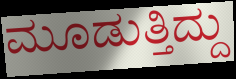
ಮೂಡುತ್ತಿದ್ದು